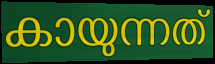
കായുന്നത്